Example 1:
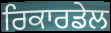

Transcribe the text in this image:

ਰਿਕਾਰਡੇਲ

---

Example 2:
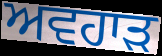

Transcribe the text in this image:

ਅਵਹਾੜ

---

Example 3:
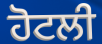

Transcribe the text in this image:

ਹੋਟਲੀ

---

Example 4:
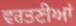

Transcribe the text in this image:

ਵਰਤਣੀਆਂ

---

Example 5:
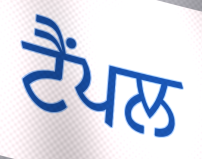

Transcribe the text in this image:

ਟੈਂਪਲ